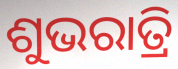
ଶୁଭରାତ୍ରି